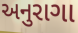
અનુરાગા